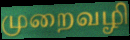
முறைவழி